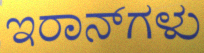
ಇರಾನ್‌ಗಳು